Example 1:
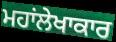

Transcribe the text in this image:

ਮਹਾਂਲੇਖਾਕਾਰ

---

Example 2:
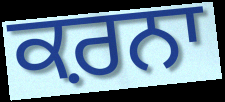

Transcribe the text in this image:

ਕ਼ਰਨਾ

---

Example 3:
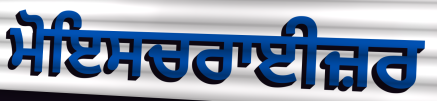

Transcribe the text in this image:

ਮੋਇਸਚਰਾਈਜ਼ਰ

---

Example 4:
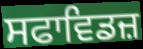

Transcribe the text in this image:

ਸਫਾਵਿਡਜ਼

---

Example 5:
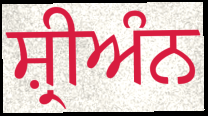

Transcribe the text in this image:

ਸ਼੍ਰੀਅੰਨ